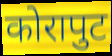
कोरापुट